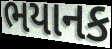
ભયાનક